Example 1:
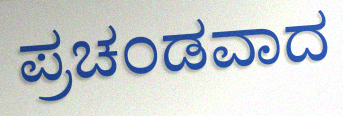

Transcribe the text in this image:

ಪ್ರಚಂಡವಾದ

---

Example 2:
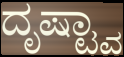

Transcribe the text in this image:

ದೃಷ್ಟ್ವಾ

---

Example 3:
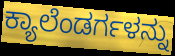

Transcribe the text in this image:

ಕ್ಯಾಲೆಂಡರ್ಗಳನ್ನು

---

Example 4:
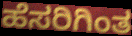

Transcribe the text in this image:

ಹೆಸರಿಗಿಂತ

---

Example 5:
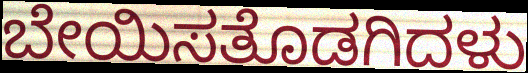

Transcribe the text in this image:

ಬೇಯಿಸತೊಡಗಿದಳು